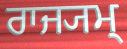
ਰਾਜ੍ਯਮ੍